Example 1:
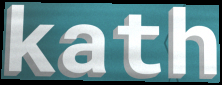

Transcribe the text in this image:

kath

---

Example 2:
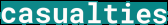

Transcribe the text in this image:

casualties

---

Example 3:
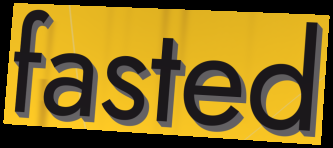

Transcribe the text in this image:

fasted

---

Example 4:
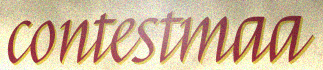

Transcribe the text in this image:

contestmaa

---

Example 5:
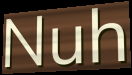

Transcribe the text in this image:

Nuh